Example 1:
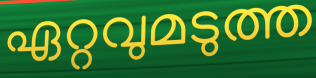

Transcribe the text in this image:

ഏറ്റവുമടുത്ത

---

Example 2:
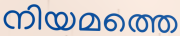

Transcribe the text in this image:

നിയമത്തെ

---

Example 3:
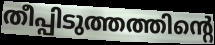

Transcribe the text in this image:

തീപ്പിടുത്തത്തിന്റെ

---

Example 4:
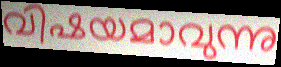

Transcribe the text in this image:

വിഷയമാവുന്നു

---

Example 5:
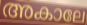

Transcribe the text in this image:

അകാലേ